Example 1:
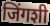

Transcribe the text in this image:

जिंगशी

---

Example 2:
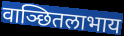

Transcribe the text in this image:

वाञ्छितलाभाय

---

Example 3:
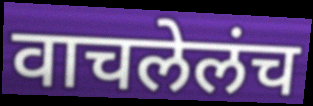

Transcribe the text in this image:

वाचलेलंच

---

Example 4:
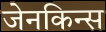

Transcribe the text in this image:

जेनकिन्स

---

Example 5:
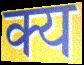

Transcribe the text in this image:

क्य